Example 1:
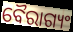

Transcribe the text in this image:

ବୈରାଗ୍ୟଂ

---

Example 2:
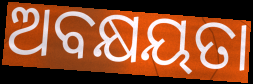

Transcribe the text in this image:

ଅବକ୍ଷୟତା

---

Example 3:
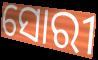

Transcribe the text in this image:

ସୋରୀ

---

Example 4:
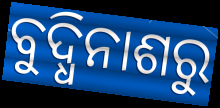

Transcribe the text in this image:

ବୁଦ୍ଧିନାଶରୁ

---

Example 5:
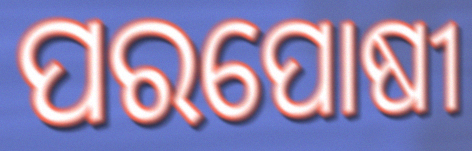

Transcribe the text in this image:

ପରପୋଷୀ